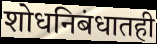
शोधनिबंधातही